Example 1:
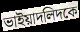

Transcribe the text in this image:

ভাইয়াদলিদকে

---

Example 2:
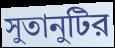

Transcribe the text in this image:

সুতানুটির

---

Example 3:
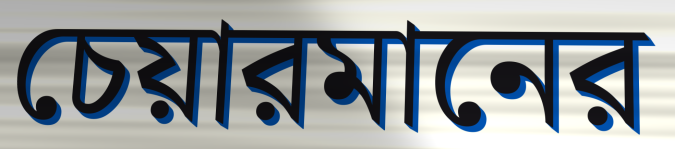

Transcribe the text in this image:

চেয়ারমানের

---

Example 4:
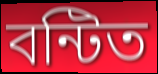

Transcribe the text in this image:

বন্টিত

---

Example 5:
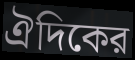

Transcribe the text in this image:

ঐদিকের